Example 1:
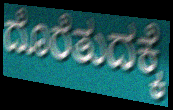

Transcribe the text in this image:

ದೊರೆತುದಕ್ಕೆ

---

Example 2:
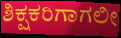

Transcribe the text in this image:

ಶಿಕ್ಷಕರಿಗಾಗಲೀ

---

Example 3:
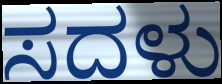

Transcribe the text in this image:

ಸದಳು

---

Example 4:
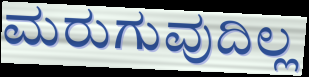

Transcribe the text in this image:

ಮರುಗುವುದಿಲ್ಲ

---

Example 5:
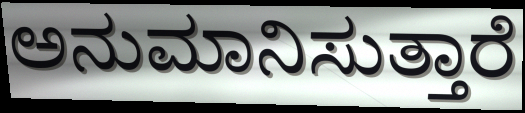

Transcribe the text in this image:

ಅನುಮಾನಿಸುತ್ತಾರೆ